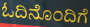
ಓದಿನೊಂದಿಗೆ